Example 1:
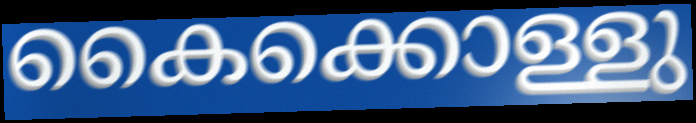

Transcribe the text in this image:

കൈക്കൊള്ളു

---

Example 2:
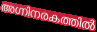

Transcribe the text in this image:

അഗ്നിനരകത്തിൽ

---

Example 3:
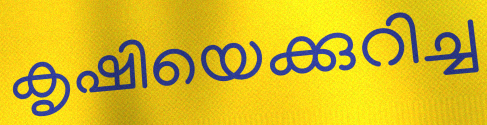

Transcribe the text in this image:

കൃഷിയെക്കുറിച്ച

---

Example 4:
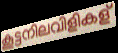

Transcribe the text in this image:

കൂട്ടനിലവിളികള്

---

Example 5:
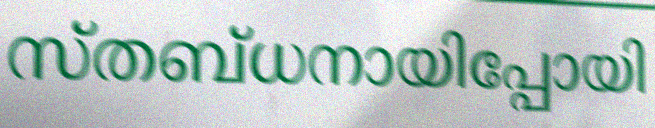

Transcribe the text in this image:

സ്തബ്ധനായിപ്പോയി